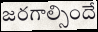
జరగాల్సిందే